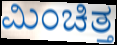
ಮಿಂಚಿತ್ತ